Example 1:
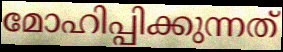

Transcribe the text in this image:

മോഹിപ്പിക്കുന്നത്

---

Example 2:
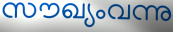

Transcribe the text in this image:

സൗഖ്യംവന്നു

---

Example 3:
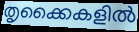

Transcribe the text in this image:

തൃക്കൈകളിൽ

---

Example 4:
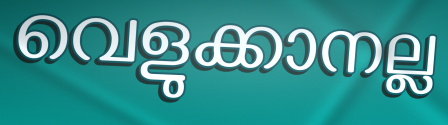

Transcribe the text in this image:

വെളുക്കാനല്ല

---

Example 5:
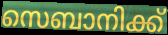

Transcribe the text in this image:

സെബാനിക്ക്